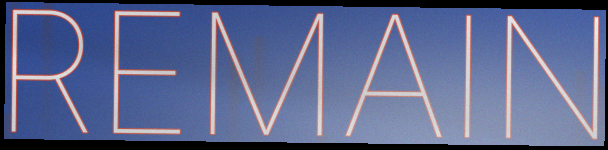
REMAIN